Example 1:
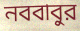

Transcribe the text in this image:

নববাবুর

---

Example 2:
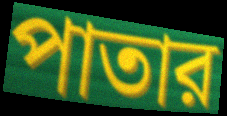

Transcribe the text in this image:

পাতার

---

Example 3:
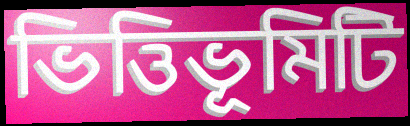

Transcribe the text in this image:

ভিত্তিভূমিটি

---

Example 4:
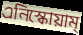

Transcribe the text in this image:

এনিস্কোয়াম্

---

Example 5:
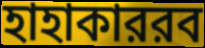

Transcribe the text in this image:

হাহাকাররব